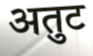
अतुट